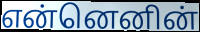
என்னெனின்